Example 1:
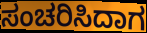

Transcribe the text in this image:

ಸಂಚರಿಸಿದಾಗ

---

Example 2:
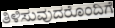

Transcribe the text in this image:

ತಿಳಿಸುವುದರೊಂದಿಗೆ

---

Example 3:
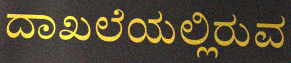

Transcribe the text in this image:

ದಾಖಲೆಯಲ್ಲಿರುವ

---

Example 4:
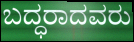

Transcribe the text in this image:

ಬದ್ಧರಾದವರು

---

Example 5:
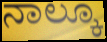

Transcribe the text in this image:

ನಾಲ್ಕೂ